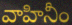
వాహినీం